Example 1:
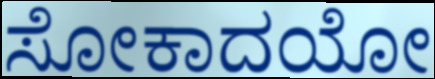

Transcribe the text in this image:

ಸೋಕಾದಯೋ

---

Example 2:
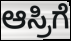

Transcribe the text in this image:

ಆಸ್ರಿಗೆ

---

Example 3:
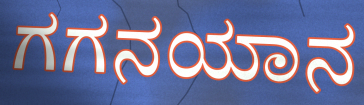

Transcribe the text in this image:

ಗಗನಯಾನ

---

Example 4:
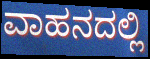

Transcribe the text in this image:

ವಾಹನದಲ್ಲಿ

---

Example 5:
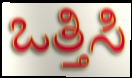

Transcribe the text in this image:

ಒತ್ತಿಸಿ